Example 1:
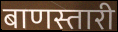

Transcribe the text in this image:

बाणस्तारी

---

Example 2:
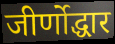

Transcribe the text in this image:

जीर्णोद्धार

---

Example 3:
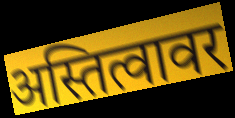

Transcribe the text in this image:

अस्तित्वावर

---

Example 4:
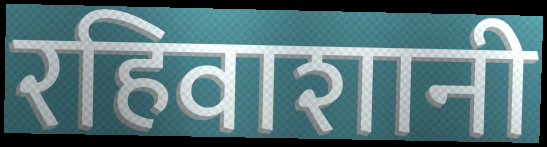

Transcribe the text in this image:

रहिवाशानी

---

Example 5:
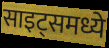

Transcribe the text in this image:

साइट्समध्ये